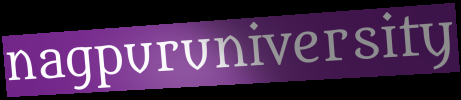
nagpuruniversity